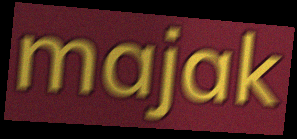
majak